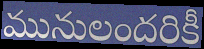
మునులందరికీ